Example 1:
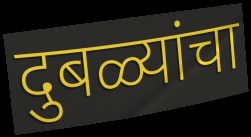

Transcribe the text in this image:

दुबळ्यांचा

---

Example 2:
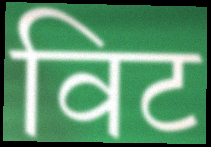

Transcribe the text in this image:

विट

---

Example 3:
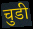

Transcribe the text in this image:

चुडी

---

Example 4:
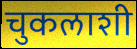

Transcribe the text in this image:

चुकलाशी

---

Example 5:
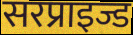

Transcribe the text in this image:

सरप्राइज्ड